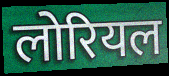
लोरियल